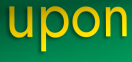
upon